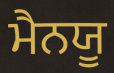
ਮੈਨਯੂ